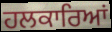
ਹਲਕਾਰਿਆਂ